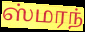
ஸ்மரந்